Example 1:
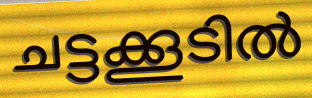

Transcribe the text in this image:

ചട്ടക്കൂടിൽ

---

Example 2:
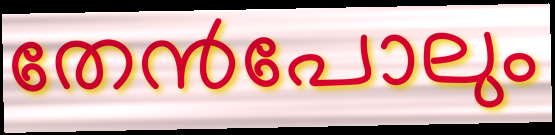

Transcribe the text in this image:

തേൻപോലും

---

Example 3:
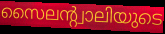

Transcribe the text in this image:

സൈലന്റ്വാലിയുടെ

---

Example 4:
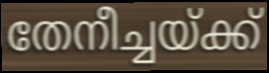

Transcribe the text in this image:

തേനീച്ചയ്ക്ക്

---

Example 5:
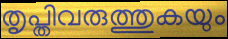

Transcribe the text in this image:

തൃപ്തിവരുത്തുകയും